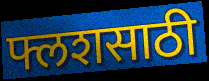
फ्लशसाठी